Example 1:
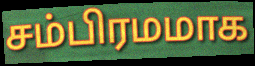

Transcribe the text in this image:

சம்பிரமமாக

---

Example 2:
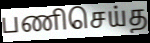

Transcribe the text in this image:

பணிசெய்த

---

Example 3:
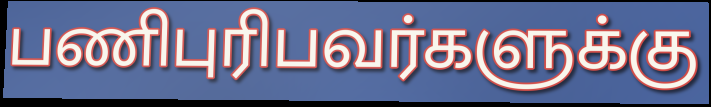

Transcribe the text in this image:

பணிபுரிபவர்களுக்கு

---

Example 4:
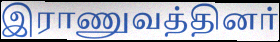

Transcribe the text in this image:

இராணுவத்தினர்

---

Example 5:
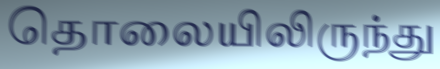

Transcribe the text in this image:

தொலையிலிருந்து